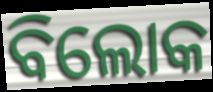
ବିଲୋକ